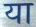
या